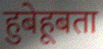
हुबेहूबता